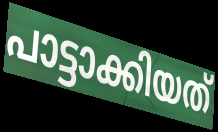
പാട്ടാക്കിയത്